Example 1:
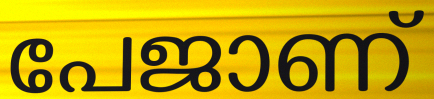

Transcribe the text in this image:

പേജാണ്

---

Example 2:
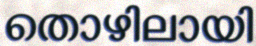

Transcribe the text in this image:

തൊഴിലായി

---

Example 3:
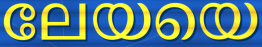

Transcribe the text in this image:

ലേയയെ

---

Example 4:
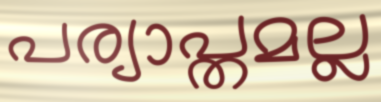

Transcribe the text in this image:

പര്യാപ്തമല്ല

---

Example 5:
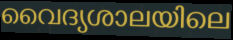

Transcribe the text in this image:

വൈദ്യശാലയിലെ